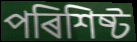
পৰিশিষ্ট